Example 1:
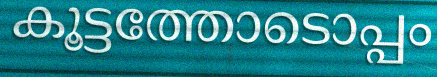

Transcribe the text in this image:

കൂട്ടത്തോടൊപ്പം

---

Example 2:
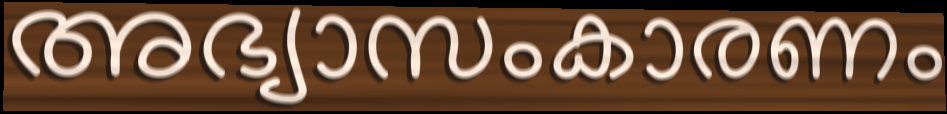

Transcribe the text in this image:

അഭ്യാസംകാരണം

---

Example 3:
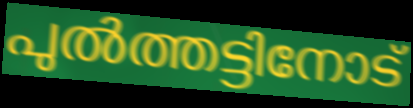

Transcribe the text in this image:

പുൽത്തട്ടിനോട്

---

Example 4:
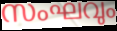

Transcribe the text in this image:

സംഘവും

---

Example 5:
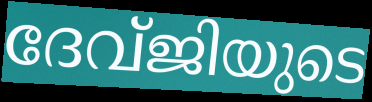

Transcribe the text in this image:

ദേവ്ജിയുടെ